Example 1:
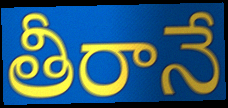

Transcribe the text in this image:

తీరానే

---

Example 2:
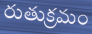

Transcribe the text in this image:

రుతుక్రమం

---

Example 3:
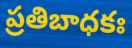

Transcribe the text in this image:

ప్రతిబాధకః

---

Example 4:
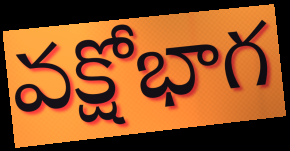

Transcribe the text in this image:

వక్షోభాగ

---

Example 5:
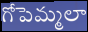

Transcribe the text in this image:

గోపెమ్మలా